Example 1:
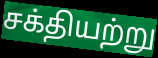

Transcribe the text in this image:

சக்தியற்று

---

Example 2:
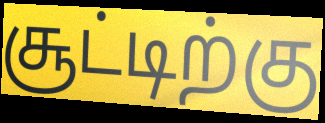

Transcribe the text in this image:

சூட்டிற்கு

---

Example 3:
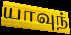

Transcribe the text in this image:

யாவுந்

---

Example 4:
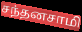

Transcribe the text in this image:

சந்தனசாமி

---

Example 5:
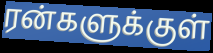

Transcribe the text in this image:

ரன்களுக்குள்